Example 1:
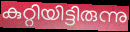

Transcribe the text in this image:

കുറ്റിയിട്ടിരുന്നു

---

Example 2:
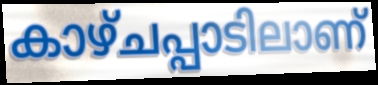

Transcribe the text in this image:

കാഴ്ചപ്പാടിലാണ്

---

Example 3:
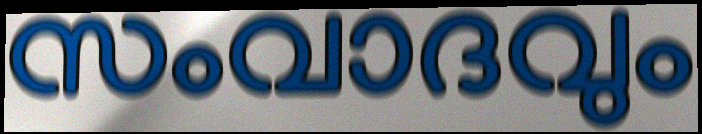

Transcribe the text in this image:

സംവാദവും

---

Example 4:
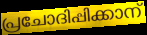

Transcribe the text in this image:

പ്രചോദിപ്പിക്കാന്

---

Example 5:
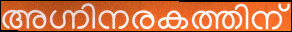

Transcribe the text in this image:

അഗ്നിനരകത്തിന്